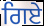
ਗਿਏ